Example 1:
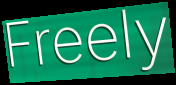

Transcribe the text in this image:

Freely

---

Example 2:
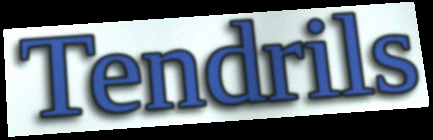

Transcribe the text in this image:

Tendrils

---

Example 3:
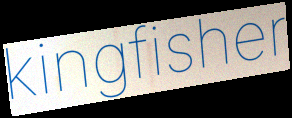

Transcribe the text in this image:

kingfisher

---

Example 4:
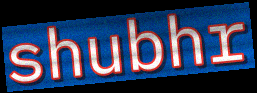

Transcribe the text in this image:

shubhr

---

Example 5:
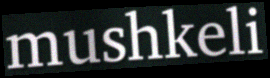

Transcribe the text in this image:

mushkeli